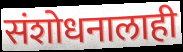
संशोधनालाही